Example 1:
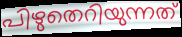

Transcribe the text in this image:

പിഴുതെറിയുന്നത്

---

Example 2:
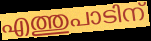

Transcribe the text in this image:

എത്തുപാടിന്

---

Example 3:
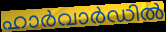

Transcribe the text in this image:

ഹാർവാർഡിൽ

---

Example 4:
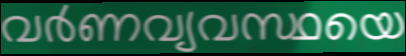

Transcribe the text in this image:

വർണവ്യവസ്ഥയെ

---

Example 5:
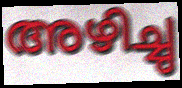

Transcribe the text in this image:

അഴിച്ചു